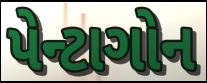
પેન્ટાગોન